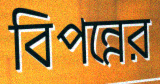
বিপন্নের